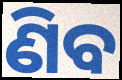
ଣିବ